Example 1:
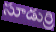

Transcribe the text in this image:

సూడుర్రి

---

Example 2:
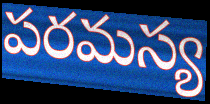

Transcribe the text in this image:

పరమస్య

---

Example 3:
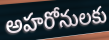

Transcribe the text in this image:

అహరోనులకు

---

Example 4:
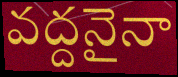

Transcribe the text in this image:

వద్దనైనా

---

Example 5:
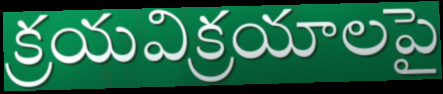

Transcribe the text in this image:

క్రయవిక్రయాలపై